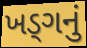
ખડ્ગનું